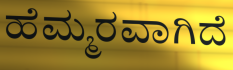
ಹೆಮ್ಮರವಾಗಿದೆ